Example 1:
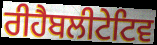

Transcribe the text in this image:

ਰੀਹੈਬਲੀਟੇਟਿਵ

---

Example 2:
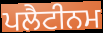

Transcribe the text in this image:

ਪਲੈਟੀਨਮ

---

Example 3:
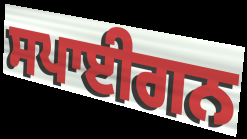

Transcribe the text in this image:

ਸਪਾਈਗਨ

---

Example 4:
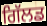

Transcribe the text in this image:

ਗਿੱਲਡ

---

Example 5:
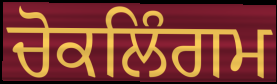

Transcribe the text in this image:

ਚੋਕਲਿੰਗਮ